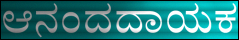
ಆನಂದದಾಯಕ